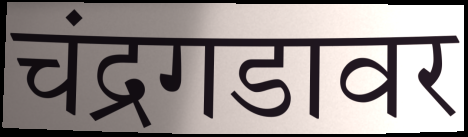
चंद्रगडावर